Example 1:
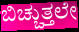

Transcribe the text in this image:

ಬಿಚ್ಚುತ್ತಲೇ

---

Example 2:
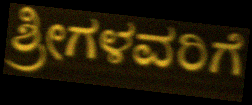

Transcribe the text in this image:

ಶ್ರೀಗಳವರಿಗೆ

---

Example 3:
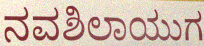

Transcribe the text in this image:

ನವಶಿಲಾಯುಗ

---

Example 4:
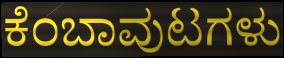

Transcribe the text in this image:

ಕೆಂಬಾವುಟಗಳು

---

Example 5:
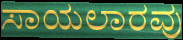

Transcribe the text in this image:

ಸಾಯಲಾರವು